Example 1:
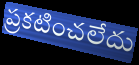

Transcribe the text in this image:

ప్రకటించలేదు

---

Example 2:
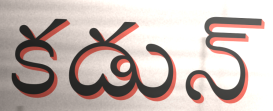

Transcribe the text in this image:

కడున్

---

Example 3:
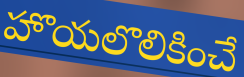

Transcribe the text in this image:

హొయలొలికించే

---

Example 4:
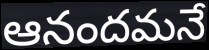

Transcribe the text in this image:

ఆనందమనే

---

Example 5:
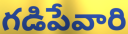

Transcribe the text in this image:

గడిపేవారి